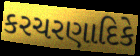
કરચરણાદિકે